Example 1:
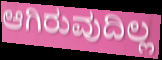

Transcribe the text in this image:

ಆಗಿರುವುದಿಲ್ಲ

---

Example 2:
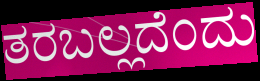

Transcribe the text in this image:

ತರಬಲ್ಲದೆಂದು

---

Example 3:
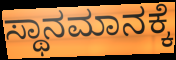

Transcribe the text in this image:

ಸ್ಥಾನಮಾನಕ್ಕೆ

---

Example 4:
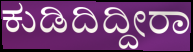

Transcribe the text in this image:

ಕುಡಿದಿದ್ದೀರಾ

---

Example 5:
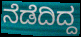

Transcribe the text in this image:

ನೆಡೆದಿದ್ದ